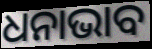
ଧନାଭାବ